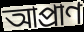
আপ্রাণ